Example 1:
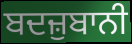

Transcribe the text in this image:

ਬਦਜ਼ੁਬਾਨੀ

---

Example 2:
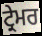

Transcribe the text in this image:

ਟ੍ਰੇਮਰ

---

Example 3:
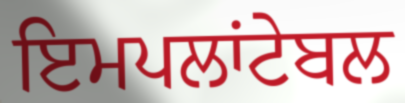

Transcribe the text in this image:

ਇਮਪਲਾਂਟੇਬਲ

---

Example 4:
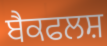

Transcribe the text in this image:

ਬੈਕਫਲਸ਼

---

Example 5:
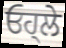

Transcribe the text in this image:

ਓਹ੍ਲੇ